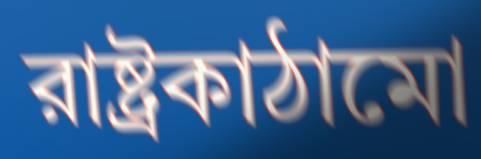
রাষ্ট্রকাঠামো